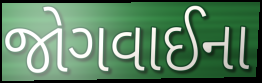
જોગવાઈના